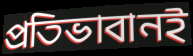
প্রতিভাবানই